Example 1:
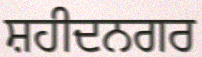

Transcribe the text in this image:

ਸ਼ਹੀਦਨਗਰ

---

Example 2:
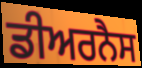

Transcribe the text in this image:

ਡੀਅਰਨੈਸ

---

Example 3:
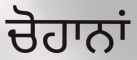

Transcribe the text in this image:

ਚੋਹਾਨਾਂ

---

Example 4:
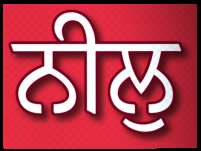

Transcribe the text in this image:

ਨੀਲੁ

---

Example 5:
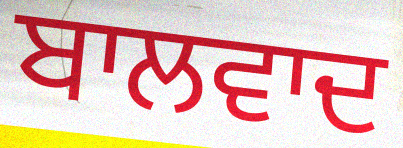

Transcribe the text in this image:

ਬਾਲਵਾਦ